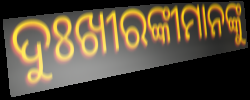
ଦୁଃଖୀରଙ୍କୀମାନଙ୍କୁ